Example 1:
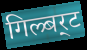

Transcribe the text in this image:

गिल्बर्ट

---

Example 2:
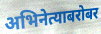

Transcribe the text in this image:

अभिनेत्याबरोबर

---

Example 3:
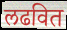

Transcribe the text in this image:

लढवित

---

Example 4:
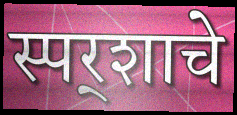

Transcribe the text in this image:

स्पर्शाचे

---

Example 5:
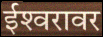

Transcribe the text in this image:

ईश्‍वरावर